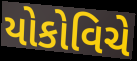
યોકોવિચે